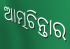
ଆତ୍ମଚିନ୍ତାର